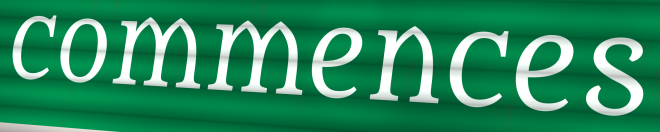
commences